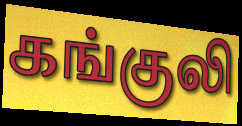
கங்குலி